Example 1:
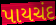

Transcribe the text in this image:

પાયચંદ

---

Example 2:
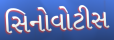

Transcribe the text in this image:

સિનોવોટીસ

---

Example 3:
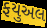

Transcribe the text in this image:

ફયુઅલ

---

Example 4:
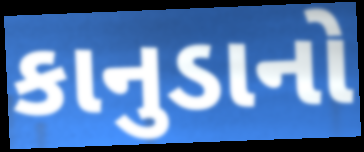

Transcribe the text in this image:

કાનુડાનો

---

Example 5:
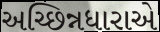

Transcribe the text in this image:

અચ્છિન્નધારાએ